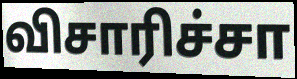
விசாரிச்சா